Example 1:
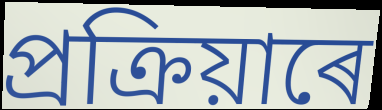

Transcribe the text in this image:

প্ৰক্ৰিয়াৰে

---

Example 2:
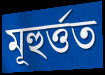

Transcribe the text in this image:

মূহুৰ্ত্তত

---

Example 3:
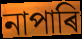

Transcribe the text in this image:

নাপাৰি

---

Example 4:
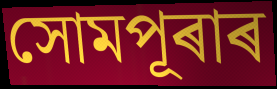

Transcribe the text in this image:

সোমপূৰাৰ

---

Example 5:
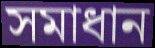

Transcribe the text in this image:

সমাধান